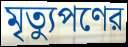
মৃত্যুপণের